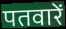
पतवारें